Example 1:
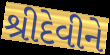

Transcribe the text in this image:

શ્રીદેવીને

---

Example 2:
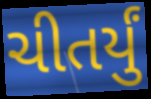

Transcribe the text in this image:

ચીતર્યું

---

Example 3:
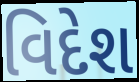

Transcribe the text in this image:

વિદેશ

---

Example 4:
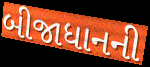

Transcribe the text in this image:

બીજાધાનની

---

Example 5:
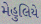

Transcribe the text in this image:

મેહુલિયે